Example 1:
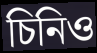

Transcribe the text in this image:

চিনিও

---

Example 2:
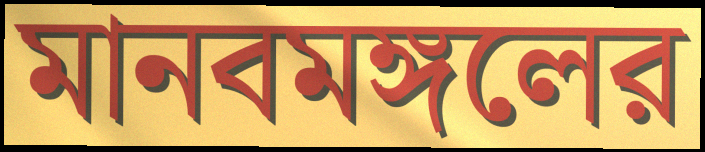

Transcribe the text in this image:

মানবমঙ্গলের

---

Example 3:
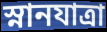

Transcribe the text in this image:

স্নানযাত্রা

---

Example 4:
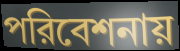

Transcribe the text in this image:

পরিবেশনায়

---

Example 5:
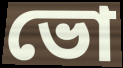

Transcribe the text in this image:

ভো